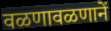
वळणावळणानें